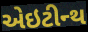
એઇટીન્થ